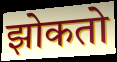
झोकतो